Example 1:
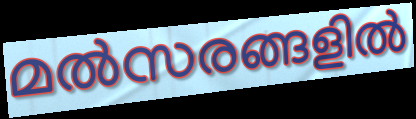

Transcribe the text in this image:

മൽസരങ്ങളിൽ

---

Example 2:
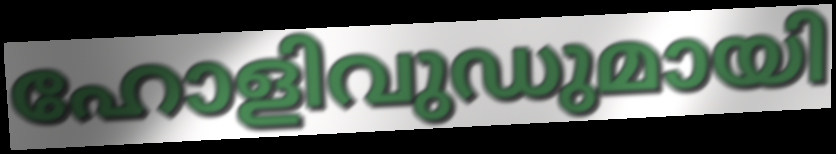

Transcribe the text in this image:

ഹോളിവുഡുമായി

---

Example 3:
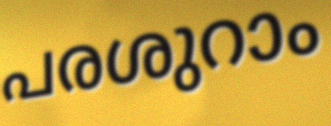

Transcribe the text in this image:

പരശുറാം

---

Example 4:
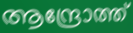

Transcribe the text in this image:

ആന്ദ്രോത്ത്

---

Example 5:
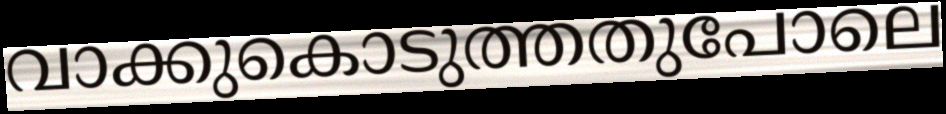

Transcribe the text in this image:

വാക്കുകൊടുത്തതുപോലെ